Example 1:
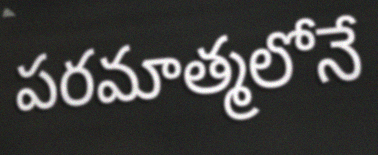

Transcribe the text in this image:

పరమాత్మలోనే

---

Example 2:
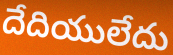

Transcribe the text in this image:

దేదియులేదు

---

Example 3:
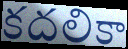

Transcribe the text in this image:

కదలికా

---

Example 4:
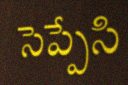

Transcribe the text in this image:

సెప్పేసి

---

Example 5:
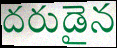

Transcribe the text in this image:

దరుడైన